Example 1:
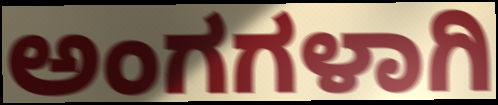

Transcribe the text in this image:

ಅಂಗಗಳಾಗಿ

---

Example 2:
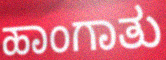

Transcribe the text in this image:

ಹಾಂಗಾತು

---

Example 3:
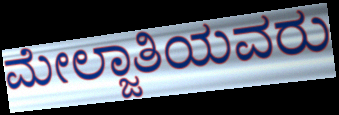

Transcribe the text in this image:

ಮೇಲ್ಜಾತಿಯವರು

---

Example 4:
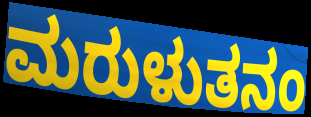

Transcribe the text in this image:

ಮರುಳುತನಂ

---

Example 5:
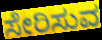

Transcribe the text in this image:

ಸೇರಿಸುವ